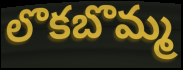
లొకబొమ్మ